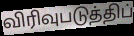
விரிவுபடுத்திப்